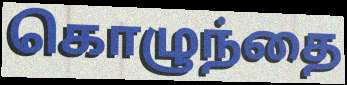
கொழுந்தை